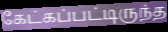
கேட்கப்பட்டிருந்த